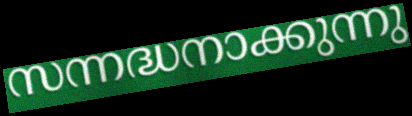
സന്നദ്ധനാക്കുന്നു